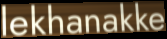
lekhanakke